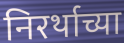
निरर्थाच्या